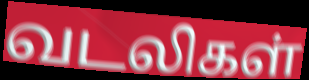
வடலிகள்